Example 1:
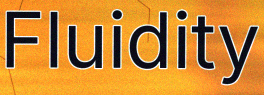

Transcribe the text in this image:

Fluidity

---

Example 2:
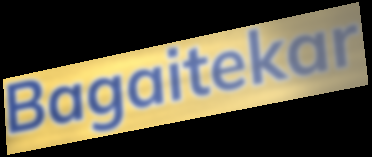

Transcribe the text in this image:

Bagaitekar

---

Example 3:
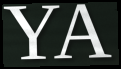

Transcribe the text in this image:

YA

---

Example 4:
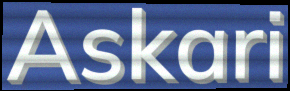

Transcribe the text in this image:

Askari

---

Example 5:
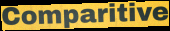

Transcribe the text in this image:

Comparitive